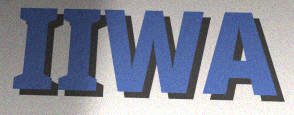
IIWA